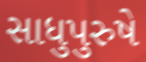
સાધુપુરુષે